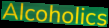
Alcoholics